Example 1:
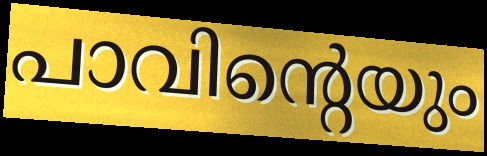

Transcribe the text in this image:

പാവിന്റെയും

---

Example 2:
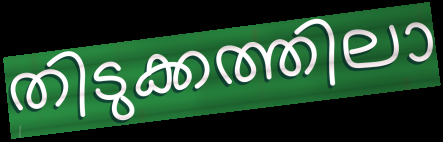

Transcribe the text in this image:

തിടുക്കത്തിലാ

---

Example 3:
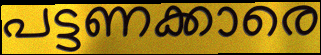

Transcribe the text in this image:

പട്ടണക്കാരെ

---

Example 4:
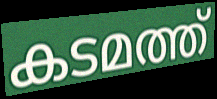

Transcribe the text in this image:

കടമത്ത്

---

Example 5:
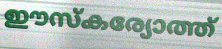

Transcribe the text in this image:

ഈസ്കര്യോത്ത്